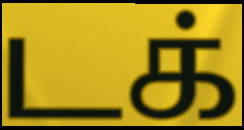
டக்